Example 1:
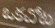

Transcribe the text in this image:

ఒకచోట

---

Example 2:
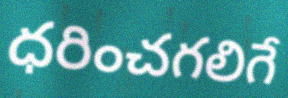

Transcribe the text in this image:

ధరించగలిగే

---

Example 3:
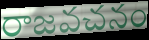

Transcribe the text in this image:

రాజవచనం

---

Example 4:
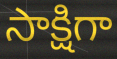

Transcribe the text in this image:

సాక్షిగా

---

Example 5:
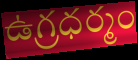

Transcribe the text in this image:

ఉగ్రధర్మం